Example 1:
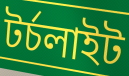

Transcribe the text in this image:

টর্চলাইট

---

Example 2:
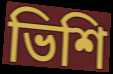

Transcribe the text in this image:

ভিশি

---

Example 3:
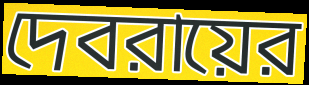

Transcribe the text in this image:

দেবরায়ের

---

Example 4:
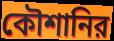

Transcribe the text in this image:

কৌশানির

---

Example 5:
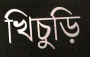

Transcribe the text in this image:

খিচুড়ি